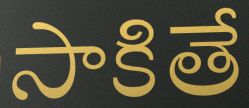
సాకితే